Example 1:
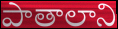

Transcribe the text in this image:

పాతాలాని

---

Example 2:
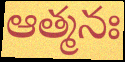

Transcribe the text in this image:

ఆత్మనః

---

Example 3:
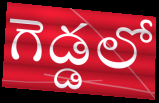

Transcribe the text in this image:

గెడ్డలో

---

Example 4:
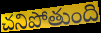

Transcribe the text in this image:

చనిపోతుంది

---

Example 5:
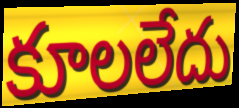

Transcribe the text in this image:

కూలలేదు